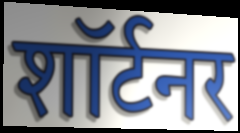
शॉर्टनर